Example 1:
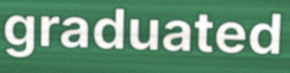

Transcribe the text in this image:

graduated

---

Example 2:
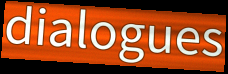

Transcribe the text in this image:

dialogues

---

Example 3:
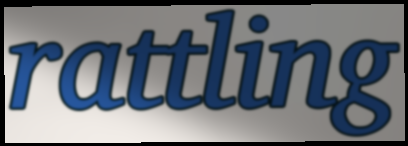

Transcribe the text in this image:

rattling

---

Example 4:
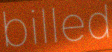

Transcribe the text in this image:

billed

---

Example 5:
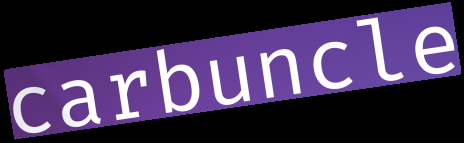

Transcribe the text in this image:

carbuncle